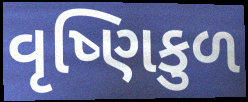
વૃષ્ણિકુળ